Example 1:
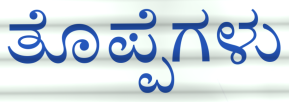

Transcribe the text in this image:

ತೊಪ್ಪೆಗಳು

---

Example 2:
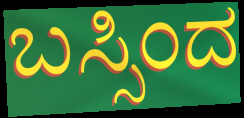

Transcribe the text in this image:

ಬಸ್ಸಿಂದ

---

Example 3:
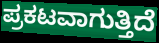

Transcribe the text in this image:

ಪ್ರಕಟವಾಗುತ್ತಿದೆ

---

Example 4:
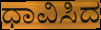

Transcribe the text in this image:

ಧಾವಿಸಿದ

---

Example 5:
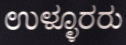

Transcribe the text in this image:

ಉಳ್ಳೂರರು